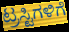
ಟ್ರಸ್ಟಿಗಳಿಗೆ